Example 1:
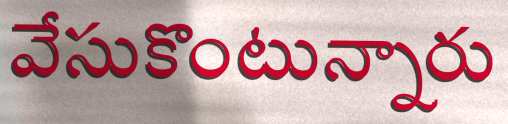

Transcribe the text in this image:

వేసుకొంటున్నారు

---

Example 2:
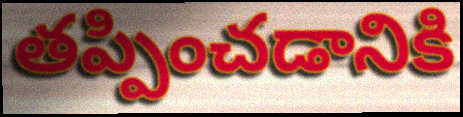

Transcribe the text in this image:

తప్పించడానికి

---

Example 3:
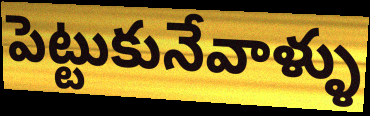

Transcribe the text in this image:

పెట్టుకునేవాళ్ళు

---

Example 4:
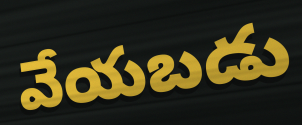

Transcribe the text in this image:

వేయబడు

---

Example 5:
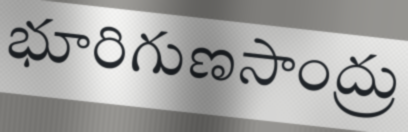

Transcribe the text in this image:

భూరిగుణసాంద్రు